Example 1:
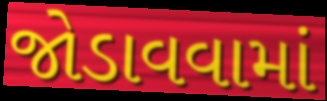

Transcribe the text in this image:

જોડાવવામાં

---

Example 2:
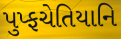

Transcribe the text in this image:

પુપ્ફચેતિયાનિ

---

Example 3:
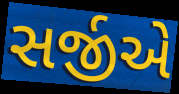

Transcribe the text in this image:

સર્જીએ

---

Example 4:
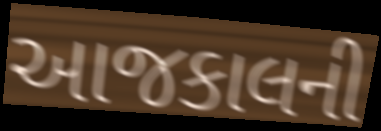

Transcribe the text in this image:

આજકાલની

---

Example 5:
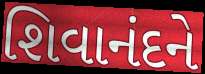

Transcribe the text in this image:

શિવાનંદને